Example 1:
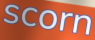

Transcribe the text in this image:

scorn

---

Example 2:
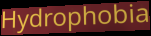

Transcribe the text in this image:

Hydrophobia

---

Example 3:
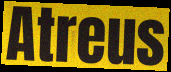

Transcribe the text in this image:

Atreus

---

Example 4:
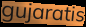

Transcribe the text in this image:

gujaratis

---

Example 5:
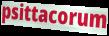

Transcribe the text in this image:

psittacorum